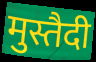
मुस्तैदी